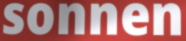
sonnen